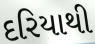
દરિયાથી